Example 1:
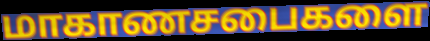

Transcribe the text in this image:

மாகாணசபைகளை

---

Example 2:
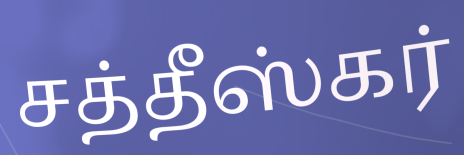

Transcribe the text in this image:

சத்தீஸ்கர்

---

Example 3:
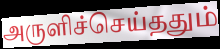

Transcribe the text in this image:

அருளிச்செய்ததும்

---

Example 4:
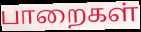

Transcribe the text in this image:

பாறைகள்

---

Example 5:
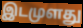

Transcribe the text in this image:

இடமுளது